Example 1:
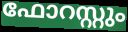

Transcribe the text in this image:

ഫോറസ്റ്റും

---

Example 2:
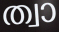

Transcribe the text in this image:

ത്വാ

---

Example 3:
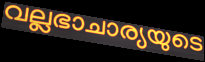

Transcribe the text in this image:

വല്ലഭാചാര്യയുടെ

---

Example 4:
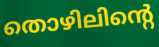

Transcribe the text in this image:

തൊഴിലിന്റെ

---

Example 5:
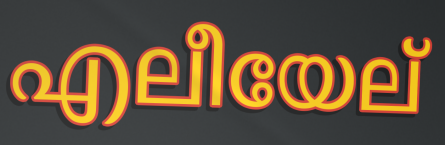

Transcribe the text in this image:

എലീയേല്